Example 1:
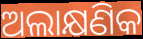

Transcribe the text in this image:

ଅଲାକ୍ଷଣିକ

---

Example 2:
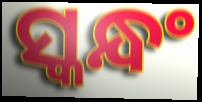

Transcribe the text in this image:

ସ୍କନ୍ଧଂ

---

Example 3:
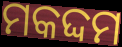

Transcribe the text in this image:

ମକଦ୍ଦମ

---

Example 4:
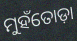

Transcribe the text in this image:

ମୁହଁତୋଡ଼ା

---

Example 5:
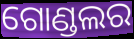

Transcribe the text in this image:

ଗୋଣ୍ଡଲର